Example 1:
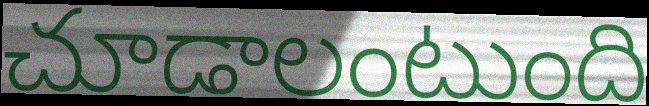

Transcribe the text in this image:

చూడాలంటుంది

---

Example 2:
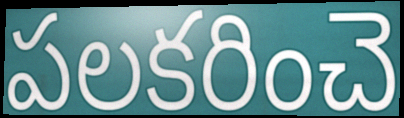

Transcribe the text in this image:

పలకరించె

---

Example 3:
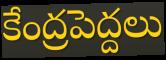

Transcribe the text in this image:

కేంద్రపెద్దలు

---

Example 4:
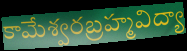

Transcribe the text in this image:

కామేశ్వరబ్రహ్మవిద్యా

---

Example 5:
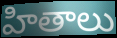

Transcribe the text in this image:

హితాలు